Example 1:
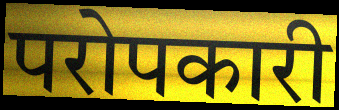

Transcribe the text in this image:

परोपकारी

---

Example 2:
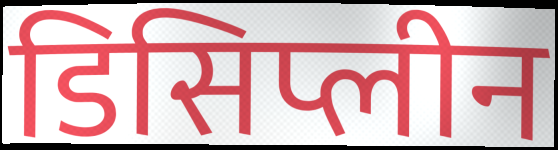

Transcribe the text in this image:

डिसिप्लीन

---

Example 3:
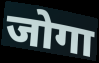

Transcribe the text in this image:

जोगा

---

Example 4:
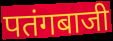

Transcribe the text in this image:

पतंगबाजी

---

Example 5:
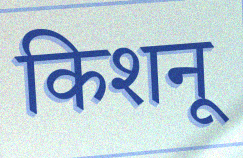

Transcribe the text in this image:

किशनू